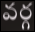
వర్గ